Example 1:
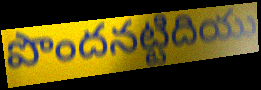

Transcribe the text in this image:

పొందనట్టిదియు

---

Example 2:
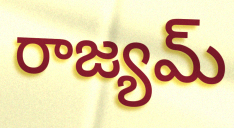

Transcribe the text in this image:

రాజ్యమ్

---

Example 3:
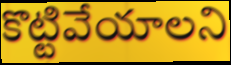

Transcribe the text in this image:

కొట్టివేయాలని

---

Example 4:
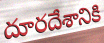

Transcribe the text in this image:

దూరదేశానికి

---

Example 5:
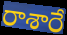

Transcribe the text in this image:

రాశారే